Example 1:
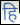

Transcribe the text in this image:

हि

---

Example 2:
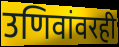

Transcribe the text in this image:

उणिवांवरही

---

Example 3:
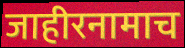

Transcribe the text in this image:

जाहीरनामाच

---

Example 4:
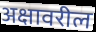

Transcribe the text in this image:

अक्षावरील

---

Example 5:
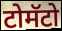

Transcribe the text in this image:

टोमॅटो